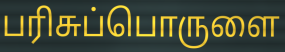
பரிசுப்பொருளை